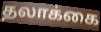
தலாக்கை